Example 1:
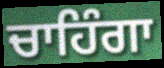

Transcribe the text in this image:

ਚਾਹਿੰਗਾ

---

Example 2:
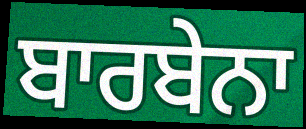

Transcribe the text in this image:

ਬਾਰਬੇਨਾ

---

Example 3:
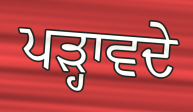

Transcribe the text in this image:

ਪੜ੍ਹਾਵਦੇ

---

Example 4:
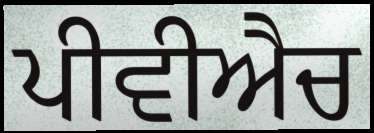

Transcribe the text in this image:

ਪੀਵੀਐਚ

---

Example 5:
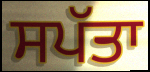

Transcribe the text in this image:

ਸਪੱਤਾ